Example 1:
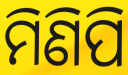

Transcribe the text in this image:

ମିଣିପି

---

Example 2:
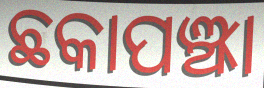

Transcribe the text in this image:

ଛକାପଞ୍ଝା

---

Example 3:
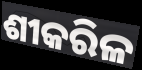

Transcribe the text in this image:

ଶୀକରିଳ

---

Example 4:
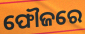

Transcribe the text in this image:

ଫୌଜରେ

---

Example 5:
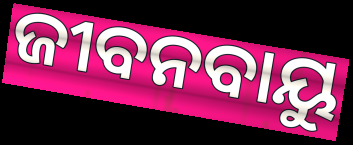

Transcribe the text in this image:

ଜୀବନବାୟୁ